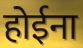
होईना